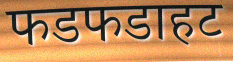
फडफडाहट